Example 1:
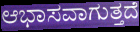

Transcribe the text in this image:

ಆಭಾಸವಾಗುತ್ತದೆ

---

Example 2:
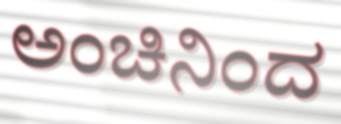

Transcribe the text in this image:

ಅಂಚಿನಿಂದ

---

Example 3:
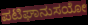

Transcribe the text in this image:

ಪಟಿಘಾನುಸಯೋ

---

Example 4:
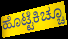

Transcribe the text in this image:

ಹೊಟ್ಟೆಕಿಚ್ಚೂ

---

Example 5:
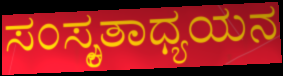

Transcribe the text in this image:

ಸಂಸ್ಕೃತಾಧ್ಯಯನ